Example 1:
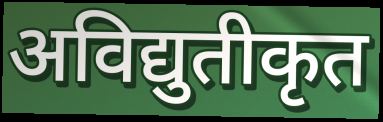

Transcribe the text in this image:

अविद्युतीकृत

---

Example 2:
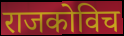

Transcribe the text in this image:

राजकोविच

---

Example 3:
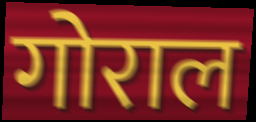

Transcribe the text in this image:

गोराल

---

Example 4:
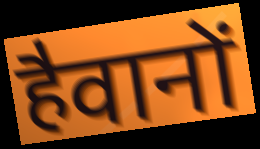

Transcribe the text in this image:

हैवानों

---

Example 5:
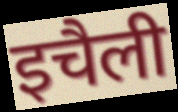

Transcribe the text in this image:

इचैली